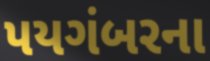
પયગંબરના